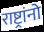
राष्ट्रांनो